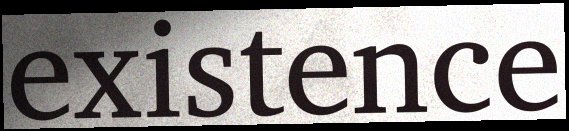
existence